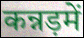
कन्नड़में